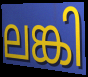
ലങ്കി